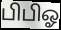
பிபிஓ